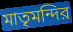
মাতৃমন্দির